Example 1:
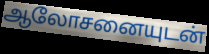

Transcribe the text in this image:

ஆலோசனையுடன்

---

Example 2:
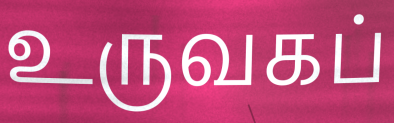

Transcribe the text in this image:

உருவகப்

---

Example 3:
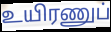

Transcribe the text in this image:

உயிரணுப்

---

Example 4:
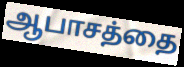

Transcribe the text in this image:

ஆபாசத்தை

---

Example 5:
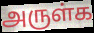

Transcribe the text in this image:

அருள்க